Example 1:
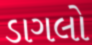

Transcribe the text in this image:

ડાગલો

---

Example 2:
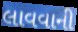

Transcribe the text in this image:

લાવવાની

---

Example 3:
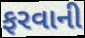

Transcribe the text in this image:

ફરવાની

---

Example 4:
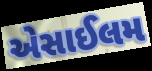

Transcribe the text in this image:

એસાઈલમ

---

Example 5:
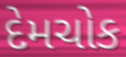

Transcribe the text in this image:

દેમચોક